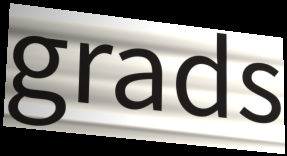
grads